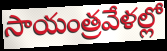
సాయంత్రవేళల్లో